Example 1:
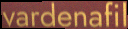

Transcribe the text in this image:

vardenafil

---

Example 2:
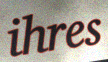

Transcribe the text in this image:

ihres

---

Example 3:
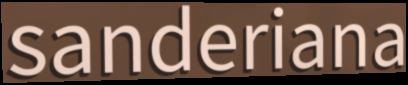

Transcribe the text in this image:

sanderiana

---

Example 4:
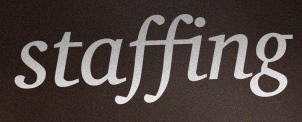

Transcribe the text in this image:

staffing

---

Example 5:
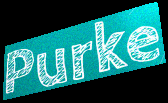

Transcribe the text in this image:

Purke